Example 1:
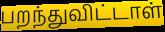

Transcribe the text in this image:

பறந்துவிட்டாள்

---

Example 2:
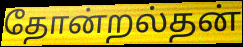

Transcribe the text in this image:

தோன்றல்தன்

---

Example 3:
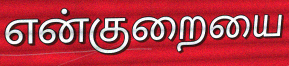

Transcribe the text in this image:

என்குறையை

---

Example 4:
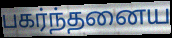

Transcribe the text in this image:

பகர்ந்தனைய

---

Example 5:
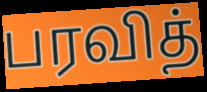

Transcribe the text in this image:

பரவித்